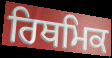
ਰਿਥਮਿਕ